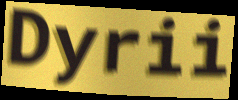
Dyrii